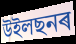
উইলছনৰ